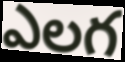
ఎలగ